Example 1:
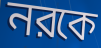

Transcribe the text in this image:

নরকে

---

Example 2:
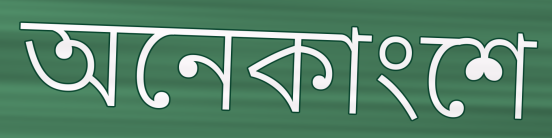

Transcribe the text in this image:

অনেকাংশে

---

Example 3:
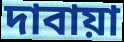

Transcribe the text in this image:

দাবায়া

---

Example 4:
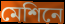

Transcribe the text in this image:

মেশিনে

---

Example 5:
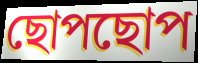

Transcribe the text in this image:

ছোপছোপ